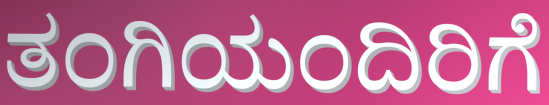
ತಂಗಿಯಂದಿರಿಗೆ